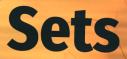
Sets